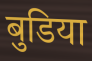
बुडिया